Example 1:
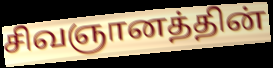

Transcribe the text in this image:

சிவஞானத்தின்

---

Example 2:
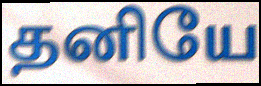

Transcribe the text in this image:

தனியே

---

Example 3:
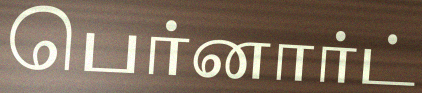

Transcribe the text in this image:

பெர்னார்ட்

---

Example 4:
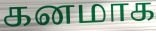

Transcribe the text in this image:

கனமாக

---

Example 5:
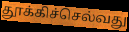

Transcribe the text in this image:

தூக்கிச்செல்வது